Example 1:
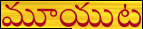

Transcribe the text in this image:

మూయుట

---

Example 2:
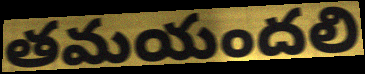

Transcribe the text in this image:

తమయందలి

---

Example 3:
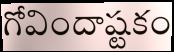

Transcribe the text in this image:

గోవిందాష్టకం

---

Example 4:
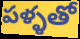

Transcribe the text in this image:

పళ్ళతో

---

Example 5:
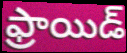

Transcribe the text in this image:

ఫ్రాయిడ్